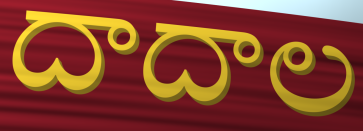
దాదాల